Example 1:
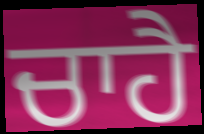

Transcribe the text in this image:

ਚਾਹੈ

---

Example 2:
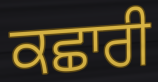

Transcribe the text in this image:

ਕਛਾਰੀ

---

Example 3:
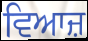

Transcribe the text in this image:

ਵਿਆਜ਼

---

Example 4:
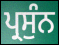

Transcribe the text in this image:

ਪ੍ਰਸੁੰਨ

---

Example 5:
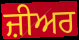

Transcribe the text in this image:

ਜ਼ੀਅਰ